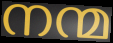
നന്മ